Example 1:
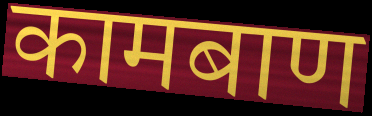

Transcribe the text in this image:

कामबाण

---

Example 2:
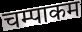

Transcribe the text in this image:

चम्पाकम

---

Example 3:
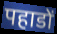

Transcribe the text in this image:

पहाडों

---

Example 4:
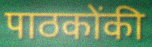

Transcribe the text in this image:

पाठकोंकी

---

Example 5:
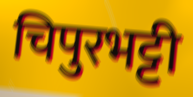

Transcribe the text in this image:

चिपुरभट्टी